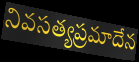
నివసత్యప్రమాదేన